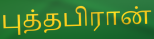
புத்தபிரான்